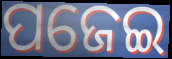
ପଜେଇ